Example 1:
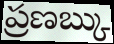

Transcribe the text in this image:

ప్రణబ్కు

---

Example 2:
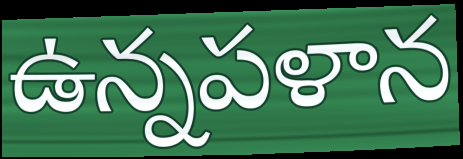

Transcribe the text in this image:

ఉన్నపళాన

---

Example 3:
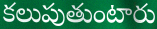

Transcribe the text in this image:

కలుపుతుంటారు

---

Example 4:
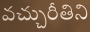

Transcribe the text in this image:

వచ్చురీతిని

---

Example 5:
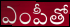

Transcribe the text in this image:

ఎంపీతో